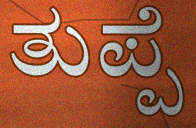
ತುಪ್ಪೆ